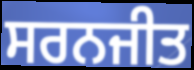
ਸਰਨਜੀਤ